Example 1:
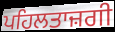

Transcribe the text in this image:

ਪਹਿਲਤਾਜ਼ਗੀ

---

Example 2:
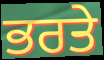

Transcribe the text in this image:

ਭਰਤੇ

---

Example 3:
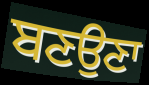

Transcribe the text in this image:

ਬਣਉਣਾ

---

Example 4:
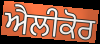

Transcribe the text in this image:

ਐਲੀਕੋਰ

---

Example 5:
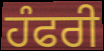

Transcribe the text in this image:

ਹੰਫਰੀ